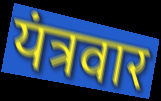
यंत्रवार